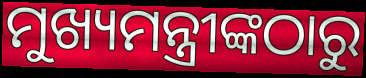
ମୁଖ୍ୟମନ୍ତ୍ରୀଙ୍କଠାରୁ